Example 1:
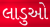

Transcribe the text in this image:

લાડુઓ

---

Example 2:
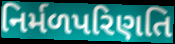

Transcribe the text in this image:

નિર્મળપરિણતિ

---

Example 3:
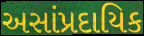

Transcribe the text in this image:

અસાંપ્રદાયિક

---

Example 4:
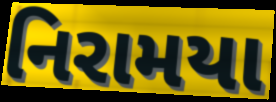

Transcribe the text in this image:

નિરામયા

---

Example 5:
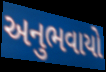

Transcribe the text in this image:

અનુભવાયો